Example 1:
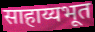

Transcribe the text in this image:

साहाय्यभूत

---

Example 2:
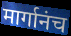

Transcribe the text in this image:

मार्गानंच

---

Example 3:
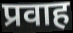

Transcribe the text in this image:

प्रवाह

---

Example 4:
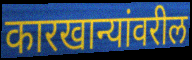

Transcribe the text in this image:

कारखान्यांवरील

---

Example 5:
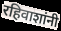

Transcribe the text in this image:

रहिवाशांनी